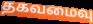
தகவமைவு